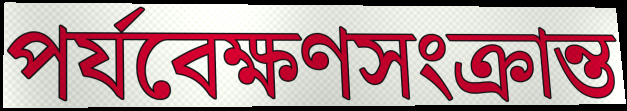
পর্যবেক্ষণসংক্রান্ত